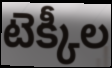
టెక్కీల